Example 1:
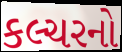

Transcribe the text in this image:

કલ્ચરનો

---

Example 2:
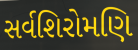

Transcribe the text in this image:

સર્વશિરોમણિ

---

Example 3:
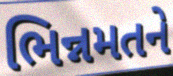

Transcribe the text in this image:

ભિન્નમતને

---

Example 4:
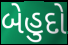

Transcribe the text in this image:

બેહુદો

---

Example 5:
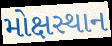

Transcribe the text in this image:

મોક્ષસ્થાન